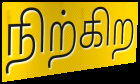
நிற்கிற